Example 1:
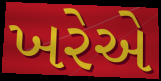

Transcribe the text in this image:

ખરેએ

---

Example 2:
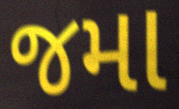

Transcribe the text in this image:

જમા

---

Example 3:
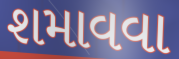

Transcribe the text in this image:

શમાવવા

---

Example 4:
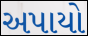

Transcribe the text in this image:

અપાયો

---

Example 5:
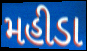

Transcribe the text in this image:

મહીડા